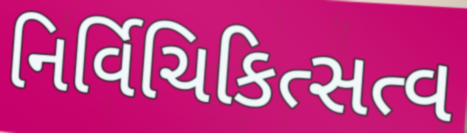
નિર્વિચિકિત્સત્વ